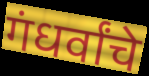
गंधर्वांचे